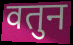
वतुन